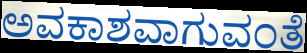
ಅವಕಾಶವಾಗುವಂತೆ